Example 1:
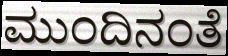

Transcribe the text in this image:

ಮುಂದಿನಂತೆ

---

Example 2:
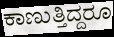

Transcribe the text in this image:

ಕಾಣುತ್ತಿದ್ದರೂ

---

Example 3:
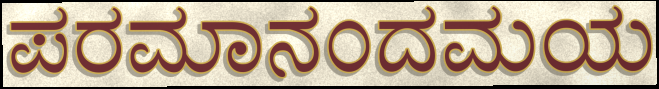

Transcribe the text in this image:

ಪರಮಾನಂದಮಯ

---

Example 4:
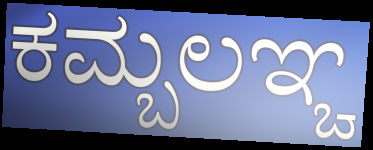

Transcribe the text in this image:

ಕಮ್ಬಲಞ್ಚ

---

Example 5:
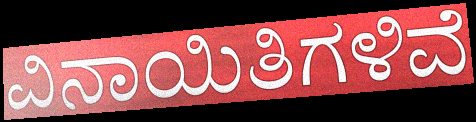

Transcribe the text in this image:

ವಿನಾಯಿತಿಗಳಿವೆ